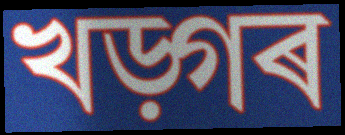
খড়্গৰ